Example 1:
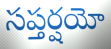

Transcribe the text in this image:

సప్తర్షయో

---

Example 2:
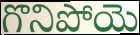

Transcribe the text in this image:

గొనిపోయె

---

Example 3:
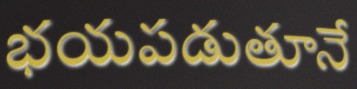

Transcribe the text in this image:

భయపడుతూనే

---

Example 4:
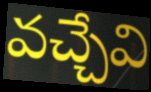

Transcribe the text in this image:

వచ్చేవి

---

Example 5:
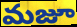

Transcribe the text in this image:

మజూ